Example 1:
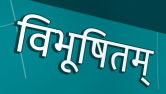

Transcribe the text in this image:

विभूषितम्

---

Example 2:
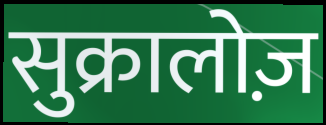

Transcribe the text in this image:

सुक्रालोज़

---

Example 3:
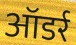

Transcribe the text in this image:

ऑडर्र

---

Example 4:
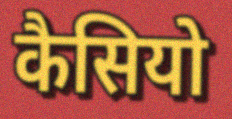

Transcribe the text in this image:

कैसियो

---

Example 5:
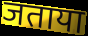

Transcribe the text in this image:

जताया